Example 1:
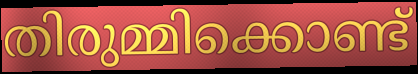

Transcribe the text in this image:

തിരുമ്മിക്കൊണ്ട്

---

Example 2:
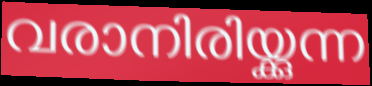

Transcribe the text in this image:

വരാനിരിയ്ക്കുന്ന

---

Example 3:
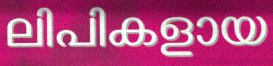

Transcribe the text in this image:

ലിപികളായ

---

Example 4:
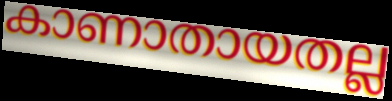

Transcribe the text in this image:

കാണാതായതല്ല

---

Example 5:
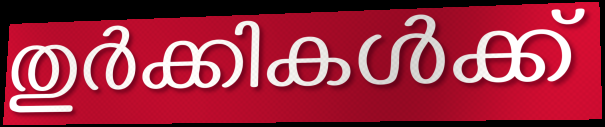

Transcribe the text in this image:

തുർക്കികൾക്ക്